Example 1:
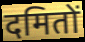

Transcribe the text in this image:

दमितों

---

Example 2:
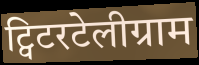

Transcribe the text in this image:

ट्विटरटेलीग्राम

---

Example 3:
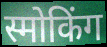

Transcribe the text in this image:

स्मोकिंग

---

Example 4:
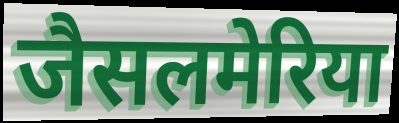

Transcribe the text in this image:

जैसलमेरिया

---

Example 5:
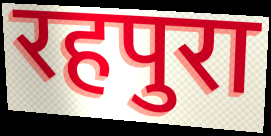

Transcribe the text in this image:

रहपुरा